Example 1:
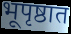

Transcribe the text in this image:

भूपृष्ठात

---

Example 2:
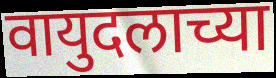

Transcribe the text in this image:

वायुदलाच्या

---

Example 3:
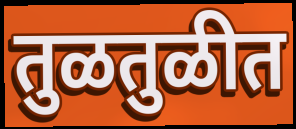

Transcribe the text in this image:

तुळतुळीत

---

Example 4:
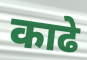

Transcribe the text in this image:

काढे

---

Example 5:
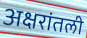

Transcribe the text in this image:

अक्षरांतली